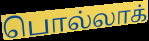
பொல்லாக்